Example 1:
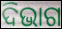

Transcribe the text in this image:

ଦିଭାଗ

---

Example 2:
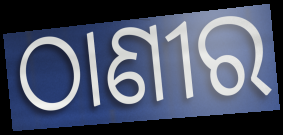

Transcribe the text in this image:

ଠାଣୀର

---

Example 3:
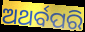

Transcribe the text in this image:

ଅଥର୍ବପରି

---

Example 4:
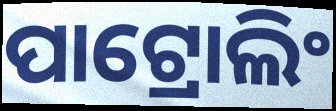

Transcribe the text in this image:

ପାଟ୍ରୋଲିଂ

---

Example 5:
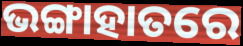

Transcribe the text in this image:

ଭଙ୍ଗାହାତରେ